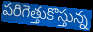
పరిగెత్తుకొస్తున్న